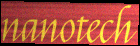
nanotech